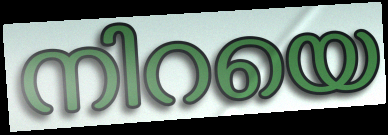
നിറയെ